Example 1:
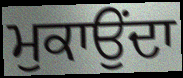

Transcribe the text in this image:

ਮੁਕਾਉਂਦਾ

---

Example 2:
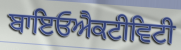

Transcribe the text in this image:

ਬਾਇਓਐਕਟੀਵਿਟੀ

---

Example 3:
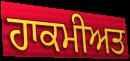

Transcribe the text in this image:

ਹਾਕਮੀਅਤ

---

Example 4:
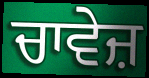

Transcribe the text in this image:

ਚਾਵੇਜ਼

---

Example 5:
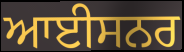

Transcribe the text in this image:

ਆਈਸਨਰ